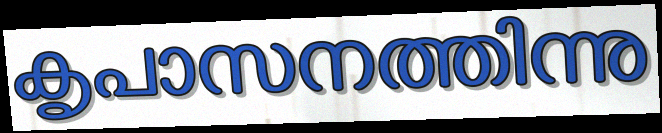
കൃപാസനത്തിന്നു